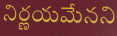
నిర్ణయమేనని